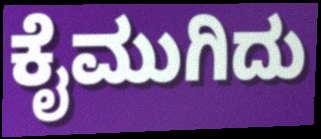
ಕೈಮುಗಿದು